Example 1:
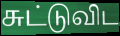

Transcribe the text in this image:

சுட்டுவிட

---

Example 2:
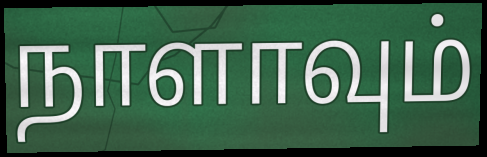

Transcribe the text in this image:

நாளாவும்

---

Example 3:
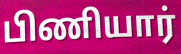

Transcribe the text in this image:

பிணியார்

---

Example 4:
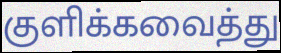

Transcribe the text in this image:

குளிக்கவைத்து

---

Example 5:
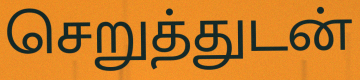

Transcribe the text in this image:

செறுத்துடன்